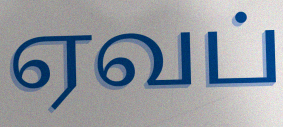
ஏவப்